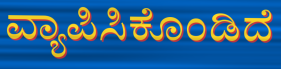
ವ್ಯಾಪಿಸಿಕೊಂಡಿದೆ